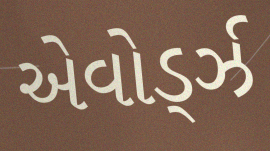
એવોર્ડ્ઝ